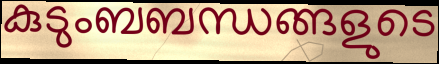
കുടുംബബന്ധങ്ങളുടെ